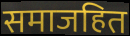
समाजहित